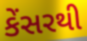
કેંસરથી